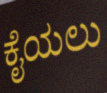
ಕೈಯಲು